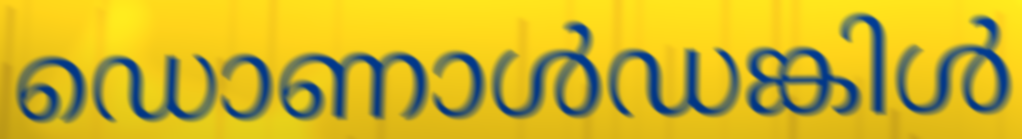
ഡൊണാൾഡങ്കിൾ